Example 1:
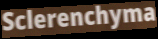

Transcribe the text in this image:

Sclerenchyma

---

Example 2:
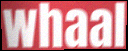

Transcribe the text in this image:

whaal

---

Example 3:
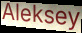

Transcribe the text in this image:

Aleksey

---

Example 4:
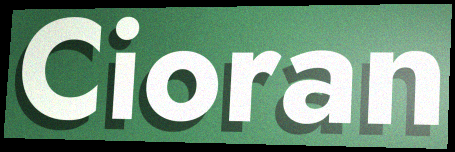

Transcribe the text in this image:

Cioran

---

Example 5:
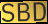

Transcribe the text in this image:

SBD